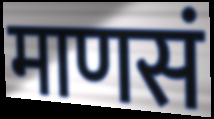
माणसं